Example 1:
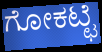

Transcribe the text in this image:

ಗೋಕಟ್ಟೆ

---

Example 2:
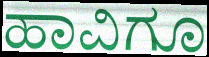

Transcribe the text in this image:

ಹಾವಿಗೂ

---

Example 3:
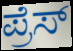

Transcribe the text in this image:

ಪ್ರೆಸ್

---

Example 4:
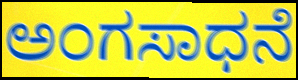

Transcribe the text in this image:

ಅಂಗಸಾಧನೆ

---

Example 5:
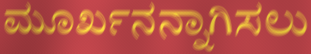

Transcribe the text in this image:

ಮೂರ್ಖನನ್ನಾಗಿಸಲು